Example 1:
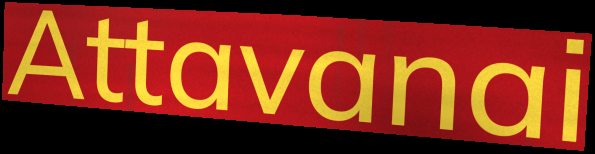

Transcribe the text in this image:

Attavanai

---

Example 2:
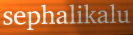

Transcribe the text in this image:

sephalikalu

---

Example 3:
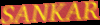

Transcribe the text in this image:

SANKAR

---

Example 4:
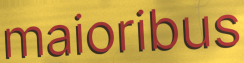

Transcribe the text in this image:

maioribus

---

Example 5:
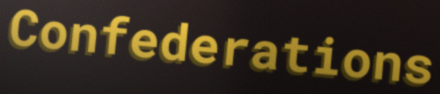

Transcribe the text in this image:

Confederations